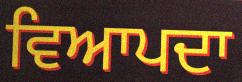
ਵਿਆਪਦਾ